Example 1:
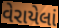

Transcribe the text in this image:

વેરાયેલાં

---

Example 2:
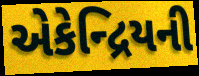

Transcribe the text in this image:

એકેન્દ્રિયની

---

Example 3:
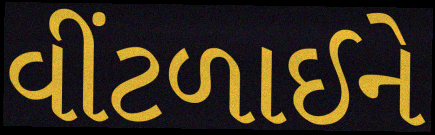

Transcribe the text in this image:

વીંટળાઈને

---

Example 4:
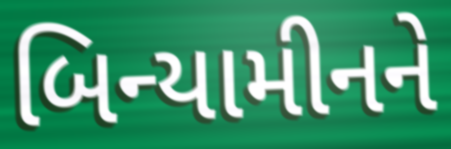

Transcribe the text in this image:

બિન્યામીનને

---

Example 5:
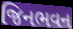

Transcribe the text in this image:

જિનભવન